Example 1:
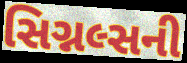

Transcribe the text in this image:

સિગ્નલ્સની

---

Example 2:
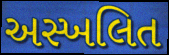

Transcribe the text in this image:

અસ્ખલિત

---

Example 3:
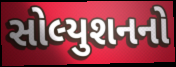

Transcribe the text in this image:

સોલ્યુશનનો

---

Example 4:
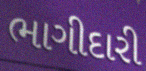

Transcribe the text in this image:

ભાગીદારી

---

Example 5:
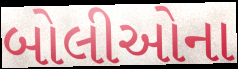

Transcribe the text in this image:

બોલીઓના